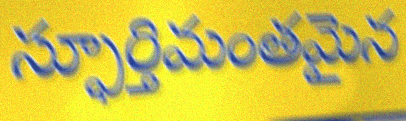
స్ఫూర్తిమంతమైన